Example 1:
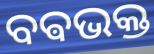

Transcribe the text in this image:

ବଵଭକ୍ତ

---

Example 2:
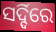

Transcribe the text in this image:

ସର୍ଦ୍ଦିରେ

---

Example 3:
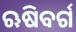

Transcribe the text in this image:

ଋଷିବର୍ଗ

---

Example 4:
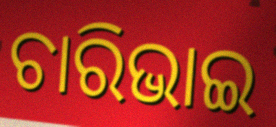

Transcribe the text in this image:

ଚାରିଭାଇ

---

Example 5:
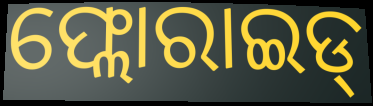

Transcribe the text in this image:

ଫ୍ଲୋରାଇଡ୍